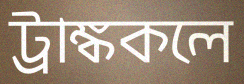
ট্রাঙ্ককলে